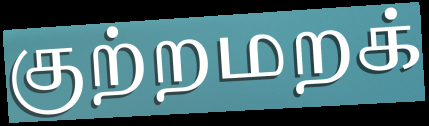
குற்றமறக்